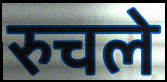
रुचले